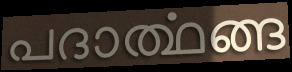
പദാൎത്ഥങ്ങ